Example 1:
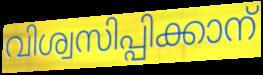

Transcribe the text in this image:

വിശ്വസിപ്പിക്കാന്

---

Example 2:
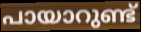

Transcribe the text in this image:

പായാറുണ്ട്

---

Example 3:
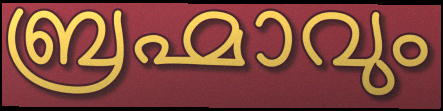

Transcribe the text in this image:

ബ്രഹ്മാവും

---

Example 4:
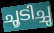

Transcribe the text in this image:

ചൂടിച്ചു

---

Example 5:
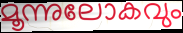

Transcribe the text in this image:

മൂന്നുലോകവും